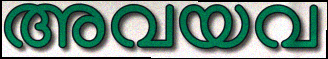
അവയവ